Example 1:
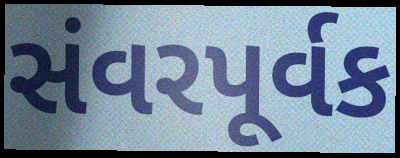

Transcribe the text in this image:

સંવરપૂર્વક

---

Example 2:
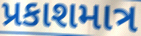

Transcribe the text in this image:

પ્રકાશમાત્ર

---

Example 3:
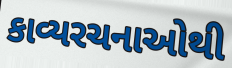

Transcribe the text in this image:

કાવ્યરચનાઓથી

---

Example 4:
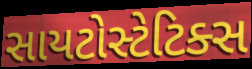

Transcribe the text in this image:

સાયટોસ્ટેટિક્સ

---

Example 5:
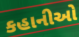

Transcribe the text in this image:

કહાનીઓ